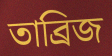
তাব্রিজ